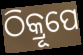
ଠିକ୍ରୂପେ